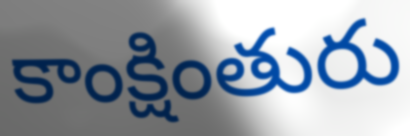
కాంక్షింతురు